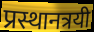
प्रस्थानत्रयी